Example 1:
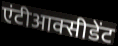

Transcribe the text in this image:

एंटीआक्सीडेंट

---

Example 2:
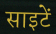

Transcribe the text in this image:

साइटें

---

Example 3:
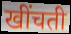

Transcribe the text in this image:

खींचती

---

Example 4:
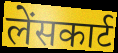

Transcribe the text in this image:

लेंसकार्ट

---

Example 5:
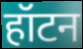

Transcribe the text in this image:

हॉटन